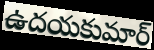
ఉదయకుమార్